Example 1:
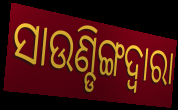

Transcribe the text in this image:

ସାଉଣ୍ଡିଙ୍ଗଦ୍ୱାରା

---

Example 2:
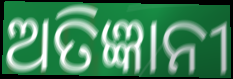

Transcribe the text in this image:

ଅତିଜ୍ଞାନୀ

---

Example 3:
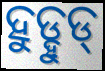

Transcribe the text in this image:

ହୁଡ୍ହୁଡ୍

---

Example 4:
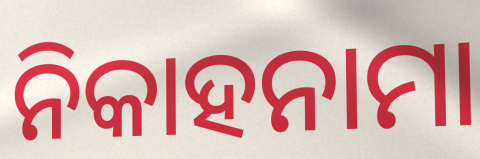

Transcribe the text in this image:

ନିକାହନାମା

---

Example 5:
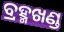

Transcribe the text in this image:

ବ୍ରହ୍ମଖଣ୍ଡ